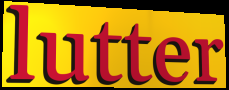
lutter